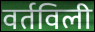
वर्तविली